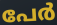
പേർ